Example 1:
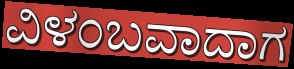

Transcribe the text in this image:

ವಿಳಂಬವಾದಾಗ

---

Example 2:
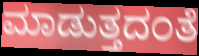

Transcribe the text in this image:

ಮಾಡುತ್ತದಂತೆ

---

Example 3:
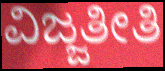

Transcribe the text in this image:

ವಿಜ್ಜತೀತಿ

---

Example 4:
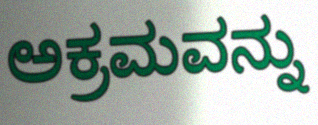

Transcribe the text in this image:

ಅಕ್ರಮವನ್ನು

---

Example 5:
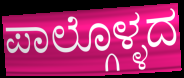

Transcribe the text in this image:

ಪಾಲ್ಗೊಳ್ಳದ